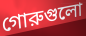
গোরুগুলো